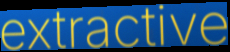
extractive